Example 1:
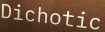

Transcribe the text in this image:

Dichotic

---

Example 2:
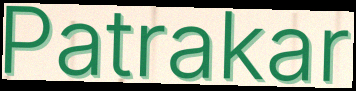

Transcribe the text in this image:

Patrakar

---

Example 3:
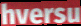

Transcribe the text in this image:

hversu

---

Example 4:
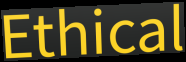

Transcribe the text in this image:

Ethical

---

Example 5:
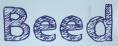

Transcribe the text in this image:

Beed